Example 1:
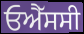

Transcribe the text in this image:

ਓਐੱਸਸੀ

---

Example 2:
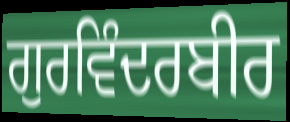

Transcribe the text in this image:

ਗੁਰਵਿੰਦਰਬੀਰ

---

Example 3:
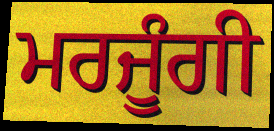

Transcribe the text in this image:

ਮਰਜੂੰਗੀ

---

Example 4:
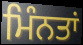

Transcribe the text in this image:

ਮਿੰਨਤਾਂ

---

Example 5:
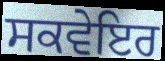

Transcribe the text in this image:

ਸਕਵੇਇਰ